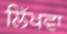
ਲਿੱਖਵਾ